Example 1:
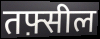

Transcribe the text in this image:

तफ़्सील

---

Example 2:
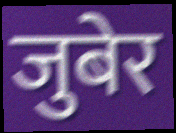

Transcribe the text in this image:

जुबेर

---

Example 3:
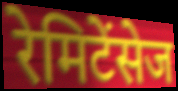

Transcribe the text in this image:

रेमिटेंसेज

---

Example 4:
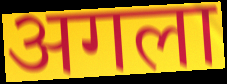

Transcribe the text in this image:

अगला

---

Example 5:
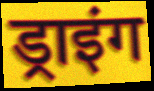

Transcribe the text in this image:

ड्राइंग